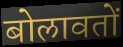
बोलावतों